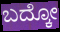
ಬದ್ಕೋ